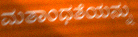
ಮತಾಂಧತೆಯನ್ನು